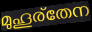
മുഹൂര്തേന